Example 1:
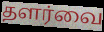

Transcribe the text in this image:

தளர்வை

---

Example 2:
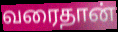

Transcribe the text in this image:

வரைதான்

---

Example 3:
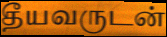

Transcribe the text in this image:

தீயவருடன்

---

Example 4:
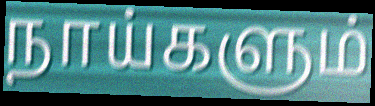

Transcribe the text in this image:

நாய்களும்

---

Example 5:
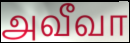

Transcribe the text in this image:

அவீவா